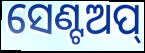
ସେଣ୍ଟଅପ୍